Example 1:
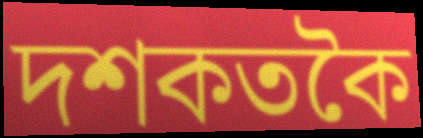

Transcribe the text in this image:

দশকতকৈ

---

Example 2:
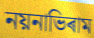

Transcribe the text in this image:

নয়নাভিৰাম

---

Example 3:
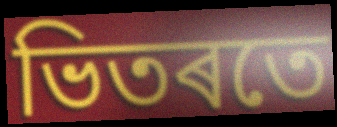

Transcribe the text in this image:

ভিতৰতে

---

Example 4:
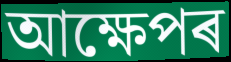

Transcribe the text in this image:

আক্ষেপৰ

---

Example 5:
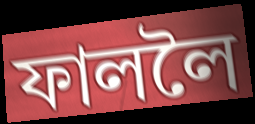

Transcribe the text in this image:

ফাললৈ